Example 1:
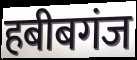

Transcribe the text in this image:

हबीबगंज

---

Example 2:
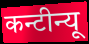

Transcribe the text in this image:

कन्टीन्यू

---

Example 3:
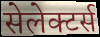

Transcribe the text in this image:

सेलेक्टर्स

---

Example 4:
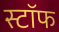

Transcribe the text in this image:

स्‍टॉफ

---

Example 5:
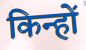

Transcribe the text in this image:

किन्हों